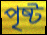
পৃষ্ট